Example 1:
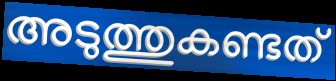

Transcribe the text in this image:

അടുത്തുകണ്ടത്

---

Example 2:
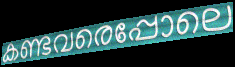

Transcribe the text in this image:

കണ്ടവരെപ്പോലെ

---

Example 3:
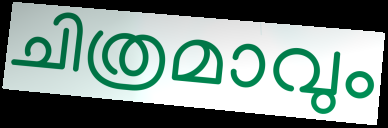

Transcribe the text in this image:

ചിത്രമാവും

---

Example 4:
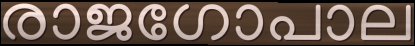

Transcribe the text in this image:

രാജഗോപാല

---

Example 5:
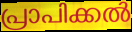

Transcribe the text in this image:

പ്രാപിക്കൽ